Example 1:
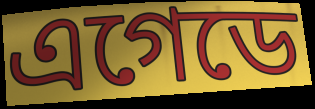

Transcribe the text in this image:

এগেডে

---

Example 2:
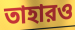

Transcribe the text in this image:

তাহারও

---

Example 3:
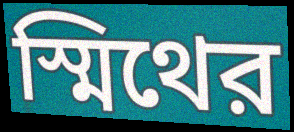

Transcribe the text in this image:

স্মিথের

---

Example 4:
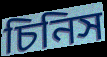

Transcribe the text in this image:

চিনিস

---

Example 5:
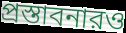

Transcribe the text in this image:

প্রস্তাবনারও